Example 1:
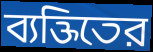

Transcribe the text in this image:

ব্যক্তিতের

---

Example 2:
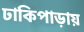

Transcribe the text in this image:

ঢাকিপাড়ায়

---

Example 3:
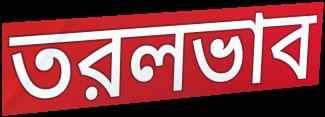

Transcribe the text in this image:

তরলভাব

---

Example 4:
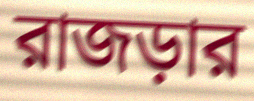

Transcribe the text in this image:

রাজড়ার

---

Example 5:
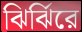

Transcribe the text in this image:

ঝির্ঝিরে